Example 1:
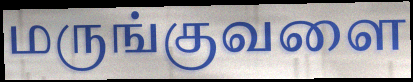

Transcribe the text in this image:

மருங்குவளை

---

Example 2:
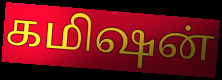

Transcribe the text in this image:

கமிஷன்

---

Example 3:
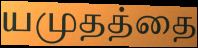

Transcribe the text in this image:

யமுதத்தை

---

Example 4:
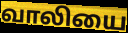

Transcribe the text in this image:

வாலியை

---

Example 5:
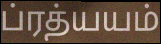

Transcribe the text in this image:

ப்ரத்யயம்